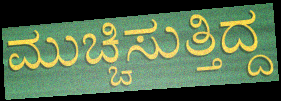
ಮುಚ್ಚಿಸುತ್ತಿದ್ದ